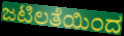
ಜಟಿಲತೆಯಿಂದ